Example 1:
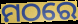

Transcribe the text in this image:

ମଠରେ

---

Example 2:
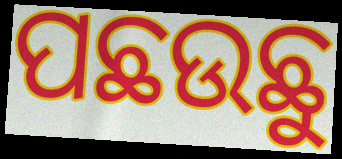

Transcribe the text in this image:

ପଛଉଛୁ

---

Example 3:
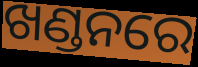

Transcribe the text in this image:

ଖଣ୍ଡନରେ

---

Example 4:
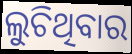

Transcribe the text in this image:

ଲୁଚିଥିବାର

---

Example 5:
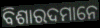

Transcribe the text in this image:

ବିଶାରଦମାନେ